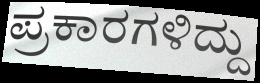
ಪ್ರಕಾರಗಳಿದ್ದು